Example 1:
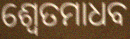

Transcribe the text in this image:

ଶ୍ୱେତମାଧବ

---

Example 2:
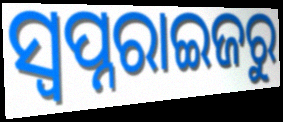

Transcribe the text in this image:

ସ୍ୱପ୍ନରାଇଜରୁ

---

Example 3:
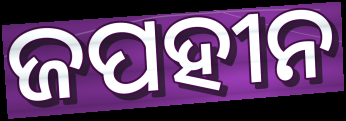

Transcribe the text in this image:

ଜପହୀନ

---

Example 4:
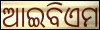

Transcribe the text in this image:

ଆଇବିଏମ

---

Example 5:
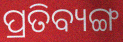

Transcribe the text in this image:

ପ୍ରତିବ୍ୟଙ୍ଗ